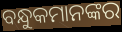
ବନ୍ଧୁକମାନଙ୍କର